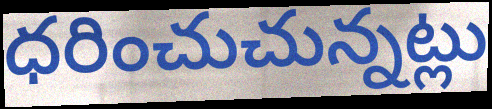
ధరించుచున్నట్లు